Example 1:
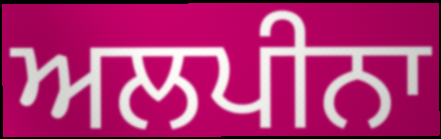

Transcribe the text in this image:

ਅਲਪੀਨਾ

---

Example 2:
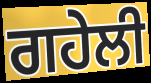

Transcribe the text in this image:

ਗਹੇਲੀ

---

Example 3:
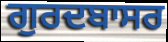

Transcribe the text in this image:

ਗੁਰਦਬਾਸਰ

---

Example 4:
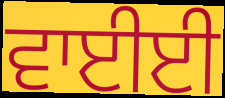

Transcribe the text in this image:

ਵਾਈਈ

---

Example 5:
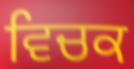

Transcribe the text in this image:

ਵਿਚਕ